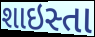
શાઇસ્તા